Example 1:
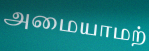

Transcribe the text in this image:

அமையாமற்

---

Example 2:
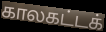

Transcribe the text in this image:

காலகட்டக்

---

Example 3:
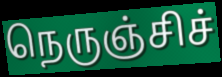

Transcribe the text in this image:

நெருஞ்சிச்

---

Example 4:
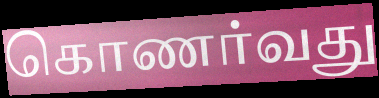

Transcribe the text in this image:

கொணர்வது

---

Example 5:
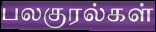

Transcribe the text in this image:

பலகுரல்கள்